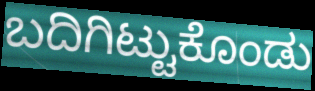
ಬದಿಗಿಟ್ಟುಕೊಂಡು